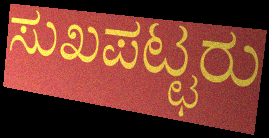
ಸುಖಪಟ್ಟರು